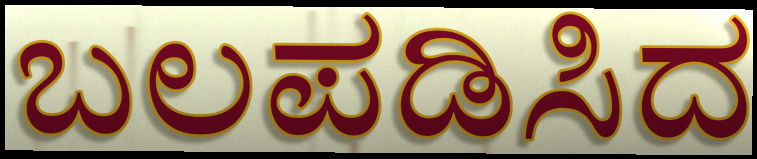
ಬಲಪಡಿಸಿದ